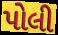
પોલી